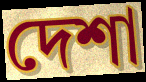
দেশা